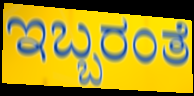
ಇಬ್ಬರಂತೆ